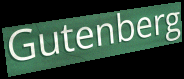
Gutenberg